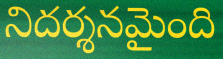
నిదర్శనమైంది